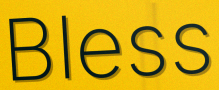
Bless